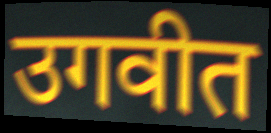
उगवीत